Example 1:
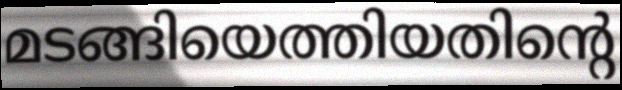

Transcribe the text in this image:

മടങ്ങിയെത്തിയതിന്റെ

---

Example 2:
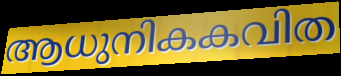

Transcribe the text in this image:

ആധുനികകവിത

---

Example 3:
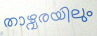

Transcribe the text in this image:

താഴ്വരയിലും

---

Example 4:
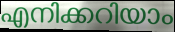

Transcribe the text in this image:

എനിക്കറിയാം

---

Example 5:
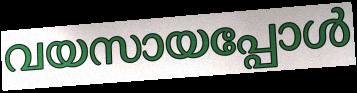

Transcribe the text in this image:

വയസായപ്പോൾ